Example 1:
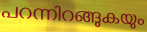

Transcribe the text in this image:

പറന്നിറങ്ങുകയും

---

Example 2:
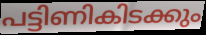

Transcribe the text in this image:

പട്ടിണികിടക്കും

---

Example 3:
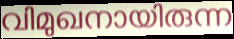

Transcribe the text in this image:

വിമുഖനായിരുന്ന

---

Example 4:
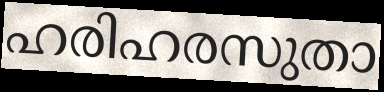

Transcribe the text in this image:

ഹരിഹരസുതാ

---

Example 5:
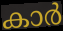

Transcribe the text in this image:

കാർ